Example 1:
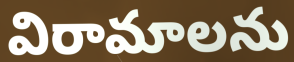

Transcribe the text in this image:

విరామాలను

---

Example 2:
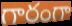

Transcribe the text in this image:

గారంగా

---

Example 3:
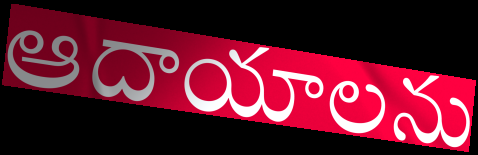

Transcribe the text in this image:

ఆదాయాలను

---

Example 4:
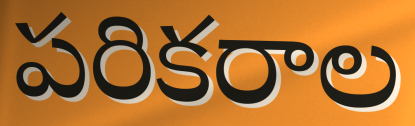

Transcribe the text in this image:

పరికరాల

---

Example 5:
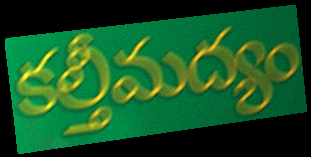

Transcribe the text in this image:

కల్తీమద్యం